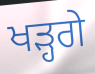
ਖੜ੍ਹਗੇ